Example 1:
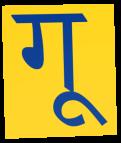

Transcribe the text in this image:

गू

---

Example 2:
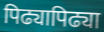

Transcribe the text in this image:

पिढ्यापिढ्या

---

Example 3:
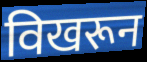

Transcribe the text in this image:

विखरून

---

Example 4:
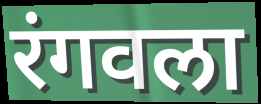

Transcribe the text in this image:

रंगवला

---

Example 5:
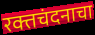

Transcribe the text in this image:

रक्तचंदनाचा